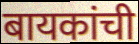
बायकांची